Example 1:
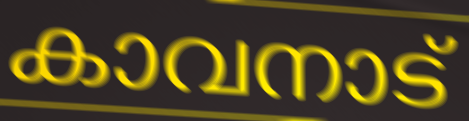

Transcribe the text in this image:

കാവനാട്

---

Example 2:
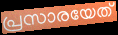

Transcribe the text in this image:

പ്രസാരയേത്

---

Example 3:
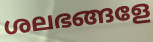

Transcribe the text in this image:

ശലഭങ്ങളേ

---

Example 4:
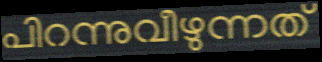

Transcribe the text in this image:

പിറന്നുവീഴുന്നത്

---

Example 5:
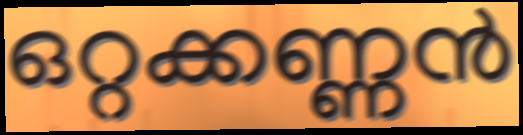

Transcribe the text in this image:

ഒറ്റക്കണ്ണൻ